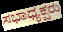
ಸಭಾಧ್ಯಕ್ಷರು